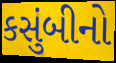
કસુંબીનો